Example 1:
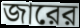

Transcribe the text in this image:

জারের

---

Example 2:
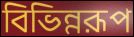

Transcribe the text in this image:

বিভিন্নরূপ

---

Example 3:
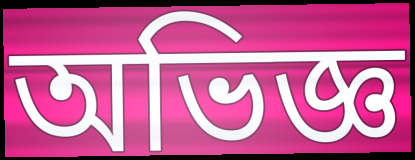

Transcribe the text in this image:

অভিজ্ঞ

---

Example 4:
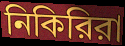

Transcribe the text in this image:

নিকিরিরা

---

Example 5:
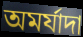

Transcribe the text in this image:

অমর্যাদা